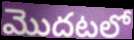
మొదటలో